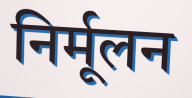
निर्मूलन